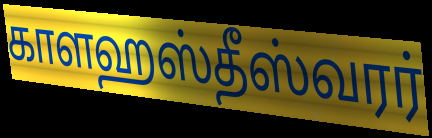
காளஹஸ்தீஸ்வரர்